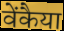
वेंकैया